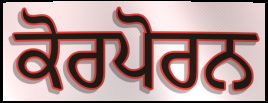
ਕੋਰਪੋਰਨ